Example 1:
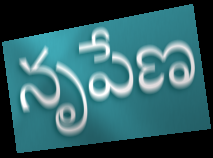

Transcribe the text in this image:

నృపేణ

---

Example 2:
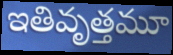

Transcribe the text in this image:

ఇతివృత్తమూ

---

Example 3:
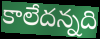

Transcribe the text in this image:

కాలేదన్నది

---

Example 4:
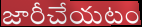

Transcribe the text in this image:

జారీచేయటం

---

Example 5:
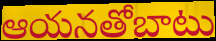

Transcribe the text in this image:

ఆయనతోబాటు